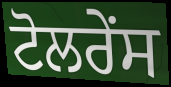
ਟੋਲਰੇਂਸ